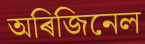
অৰিজিনেল